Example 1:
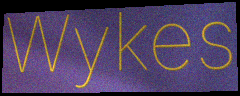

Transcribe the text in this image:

Wykes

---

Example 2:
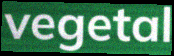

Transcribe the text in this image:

vegetal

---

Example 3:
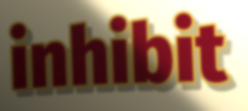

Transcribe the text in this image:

inhibit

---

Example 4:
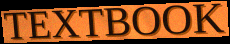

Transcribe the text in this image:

TEXTBOOK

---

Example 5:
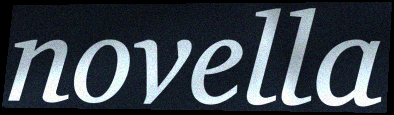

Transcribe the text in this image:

novella